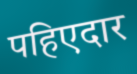
पहिएदार